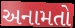
અનામતો